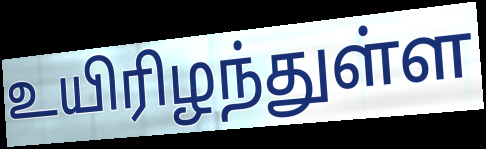
உயிரிழந்துள்ள